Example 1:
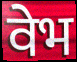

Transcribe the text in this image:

वेभ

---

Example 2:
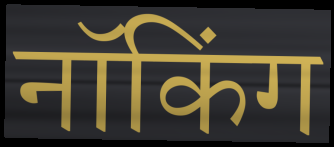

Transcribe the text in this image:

नॉकिंग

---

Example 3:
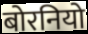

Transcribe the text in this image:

बोरनियो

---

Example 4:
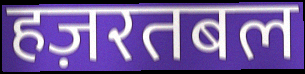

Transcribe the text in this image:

हज़रतबल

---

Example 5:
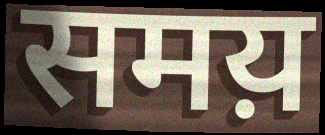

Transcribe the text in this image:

समय़